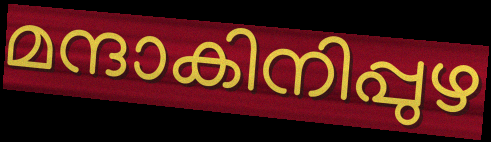
മന്ദാകിനിപ്പുഴ